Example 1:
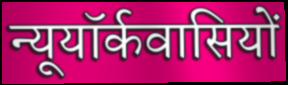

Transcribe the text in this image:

न्यूयॉर्कवासियों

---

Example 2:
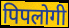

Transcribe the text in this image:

पिपलोगी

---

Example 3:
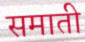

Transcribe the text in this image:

समाती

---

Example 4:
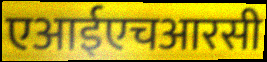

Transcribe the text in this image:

एआईएचआरसी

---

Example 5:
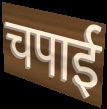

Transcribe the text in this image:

चपाई